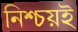
নিশ্চয়ই